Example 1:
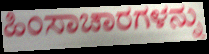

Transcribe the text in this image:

ಹಿಂಸಾಚಾರಗಳನ್ನು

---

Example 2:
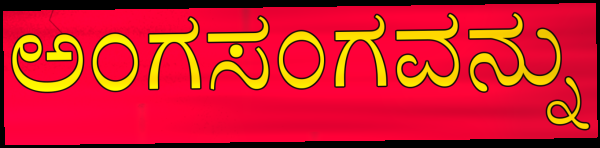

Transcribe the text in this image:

ಅಂಗಸಂಗವನ್ನು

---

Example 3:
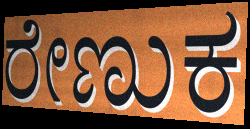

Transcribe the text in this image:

ರೇಣುಕ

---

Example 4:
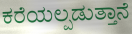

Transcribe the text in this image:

ಕರೆಯಲ್ಪಡುತ್ತಾನೆ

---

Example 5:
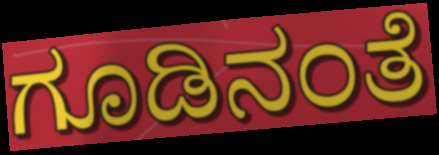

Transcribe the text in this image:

ಗೂಡಿನಂತೆ